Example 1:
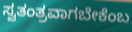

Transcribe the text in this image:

ಸ್ವತಂತ್ರವಾಗಬೇಕೆಂಬ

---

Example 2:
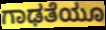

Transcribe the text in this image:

ಗಾಢತೆಯೂ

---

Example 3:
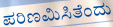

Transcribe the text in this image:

ಪರಿಣಮಿಸಿತೆಂದು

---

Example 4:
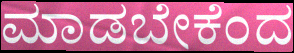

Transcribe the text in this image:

ಮಾಡಬೇಕೆಂದ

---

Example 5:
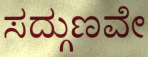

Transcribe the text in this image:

ಸದ್ಗುಣವೇ